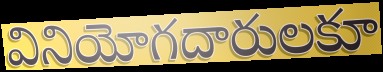
వినియోగదారులకూ